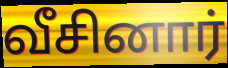
வீசினார்